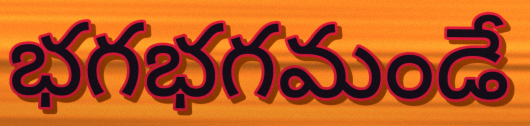
భగభగమండే